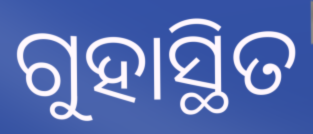
ଗୁହାସ୍ଥିତ